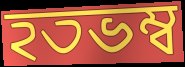
হতভম্ব